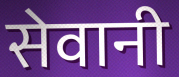
सेवानी